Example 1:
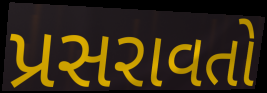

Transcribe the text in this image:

પ્રસરાવતો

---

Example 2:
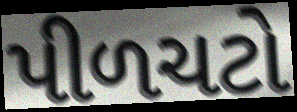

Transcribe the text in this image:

પીળચટો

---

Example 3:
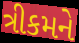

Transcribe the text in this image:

ત્રીકમને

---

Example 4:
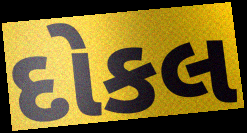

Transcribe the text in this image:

દોકલ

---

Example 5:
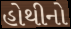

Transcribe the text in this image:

હોથીનો